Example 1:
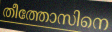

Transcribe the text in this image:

തീത്തോസിനെ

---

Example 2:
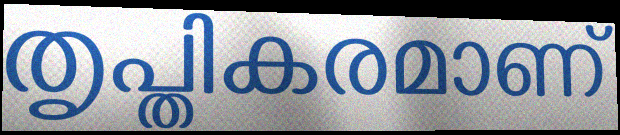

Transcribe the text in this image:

തൃപ്തികരമാണ്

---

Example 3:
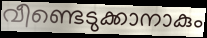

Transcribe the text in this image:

വീണ്ടെടുക്കാനാകും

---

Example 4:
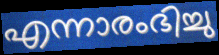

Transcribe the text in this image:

എന്നാരംഭിച്ചു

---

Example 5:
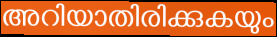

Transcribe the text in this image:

അറിയാതിരിക്കുകയും